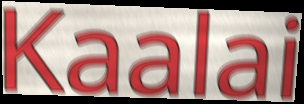
Kaalai